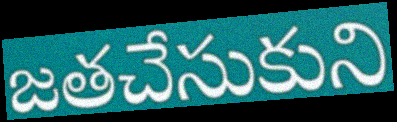
జతచేసుకుని